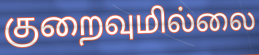
குறைவுமில்லை